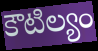
కౌటిల్యం